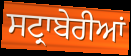
ਸਟ੍ਰਾਬੇਰੀਆਂ